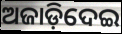
ଅଜାଡ଼ିଦେଇ